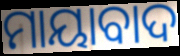
ମାୟାବାଦ